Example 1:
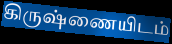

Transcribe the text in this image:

கிருஷ்ணையிடம்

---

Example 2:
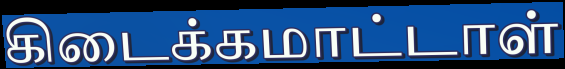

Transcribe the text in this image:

கிடைக்கமாட்டாள்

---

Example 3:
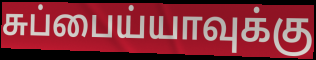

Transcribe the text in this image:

சுப்பைய்யாவுக்கு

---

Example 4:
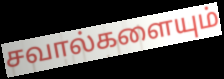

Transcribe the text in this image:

சவால்களையும்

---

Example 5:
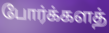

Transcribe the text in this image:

போர்க்களத்